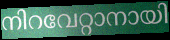
നിറവേറ്റാനായി